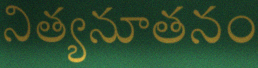
నిత్యనూతనం